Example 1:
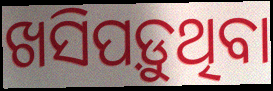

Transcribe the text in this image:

ଖସିପଡ଼ୁଥିବା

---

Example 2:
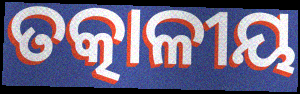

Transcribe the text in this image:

ତତ୍କାଳୀୟ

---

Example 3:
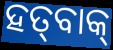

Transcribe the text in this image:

ହତ୍‌ବାକ୍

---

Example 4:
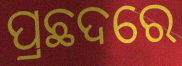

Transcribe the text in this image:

ପ୍ରଛଦରେ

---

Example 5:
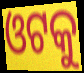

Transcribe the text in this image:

ଓଟକୁ